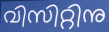
വിസിറ്റിനു